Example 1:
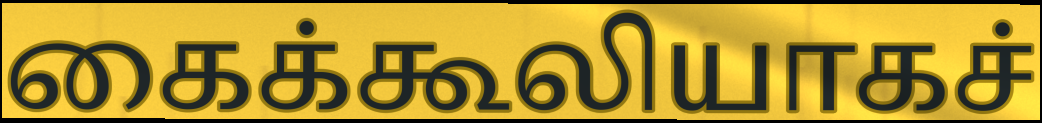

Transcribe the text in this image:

கைக்கூலியாகச்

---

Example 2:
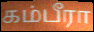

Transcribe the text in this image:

கம்பீரா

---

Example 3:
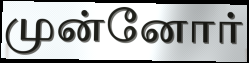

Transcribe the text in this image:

முன்னோர்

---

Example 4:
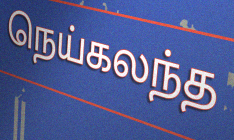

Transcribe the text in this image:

நெய்கலந்த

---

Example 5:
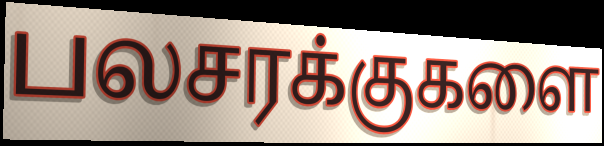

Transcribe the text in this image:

பலசரக்குகளை